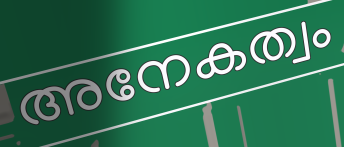
അനേകത്വം